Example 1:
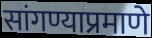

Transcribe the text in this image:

सांगण्याप्रमाणे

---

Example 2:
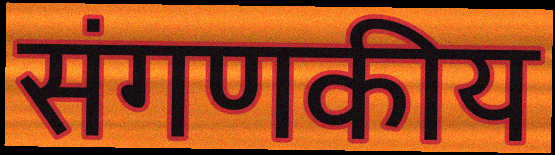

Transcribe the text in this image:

संगणकीय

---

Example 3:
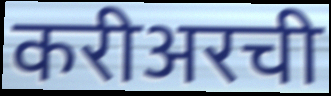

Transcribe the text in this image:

करीअरची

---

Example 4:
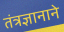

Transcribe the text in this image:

तंत्रज्ञानाने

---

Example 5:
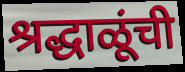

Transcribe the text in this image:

श्रद्धाळूंची